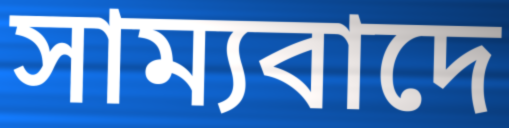
সাম্যবাদে